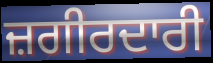
ਜ਼ਗੀਰਦਾਰੀ